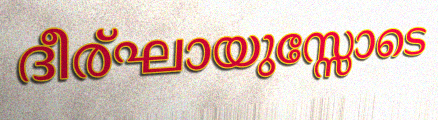
ദീര്ഘായുസ്സോടെ